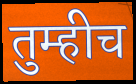
तुम्हीच